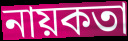
নায়কতা